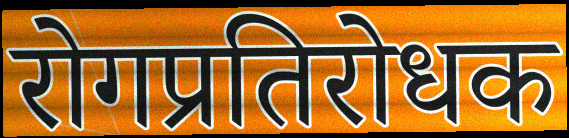
रोगप्रतिरोधक